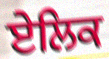
ਏਲਿਕ